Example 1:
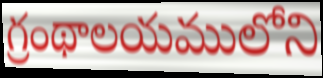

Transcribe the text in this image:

గ్రంథాలయములోని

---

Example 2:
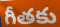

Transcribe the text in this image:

గీతకు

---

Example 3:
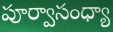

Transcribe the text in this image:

పూర్వాసంధ్యా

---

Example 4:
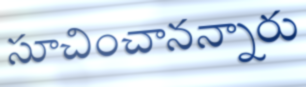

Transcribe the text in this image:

సూచించానన్నారు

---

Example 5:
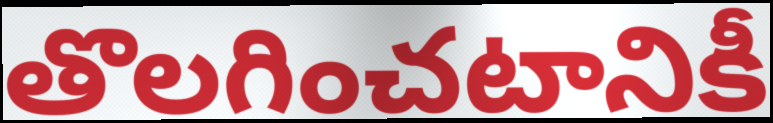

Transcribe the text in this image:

తొలగించటానికీ